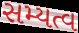
સમ્યત્વ